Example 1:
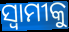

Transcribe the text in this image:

ସ୍ୱାମୀକୁ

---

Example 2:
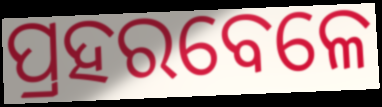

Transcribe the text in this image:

ପ୍ରହରବେଳେ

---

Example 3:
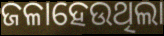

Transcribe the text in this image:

ଜଳାହେଉଥିଲା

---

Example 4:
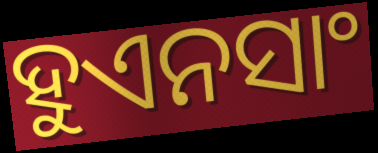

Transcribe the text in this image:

ହୁଏନସାଂ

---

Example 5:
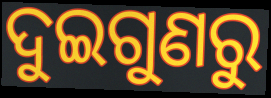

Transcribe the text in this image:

ଦୁଇଗୁଣରୁ